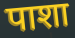
पाशा